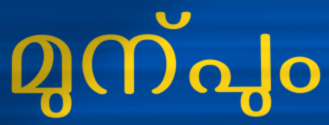
മുന്പും